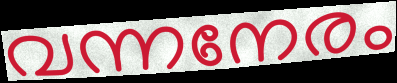
വന്നനേരം